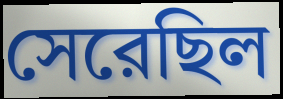
সেরেছিল